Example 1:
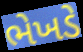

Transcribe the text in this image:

ભેખડે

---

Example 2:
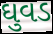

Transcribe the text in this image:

ઘુવડ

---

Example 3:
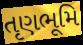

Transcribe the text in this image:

તૃણભૂમિ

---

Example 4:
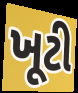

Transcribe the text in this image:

ખૂટી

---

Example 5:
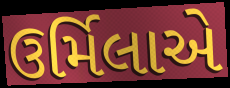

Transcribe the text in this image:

ઉર્મિલાએ